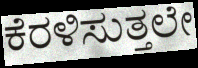
ಕೆರಳಿಸುತ್ತಲೇ